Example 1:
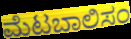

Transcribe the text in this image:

ಮೆಟಬಾಲಿಸಂ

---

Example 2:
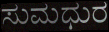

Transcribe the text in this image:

ಸುಮಧುರ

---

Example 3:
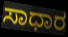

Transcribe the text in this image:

ಸಾಧಾರ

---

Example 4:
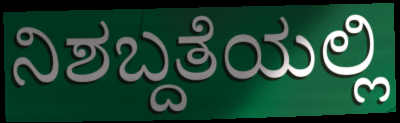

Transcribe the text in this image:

ನಿಶಬ್ದತೆಯಲ್ಲಿ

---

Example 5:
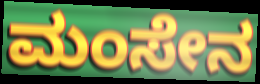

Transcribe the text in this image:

ಮಂಸೇನ